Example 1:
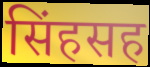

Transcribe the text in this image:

सिंहसह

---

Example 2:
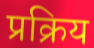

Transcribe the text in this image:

प्रक्रिय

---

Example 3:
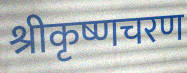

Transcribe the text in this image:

श्रीकृष्णचरण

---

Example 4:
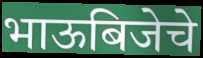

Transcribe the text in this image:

भाऊबिजेचे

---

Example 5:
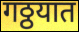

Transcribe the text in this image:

गठ्ठयात